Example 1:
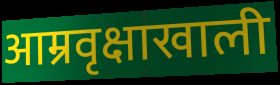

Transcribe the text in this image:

आम्रवृक्षाखाली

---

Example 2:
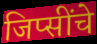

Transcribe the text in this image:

जिप्सींचे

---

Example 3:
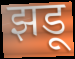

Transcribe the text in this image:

झडू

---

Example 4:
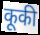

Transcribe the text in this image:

कूकी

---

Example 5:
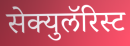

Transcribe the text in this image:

सेक्युलॅरिस्ट